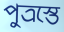
পুত্রস্তে